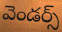
వెండర్స్